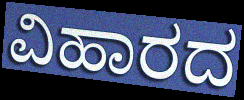
ವಿಹಾರದ